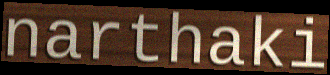
narthaki